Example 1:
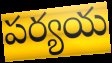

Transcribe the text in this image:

పర్యయ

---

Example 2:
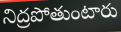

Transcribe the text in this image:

నిద్రపోతుంటారు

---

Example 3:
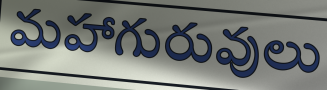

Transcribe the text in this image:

మహాగురువులు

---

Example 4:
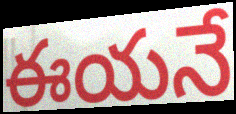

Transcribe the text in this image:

ఈయనే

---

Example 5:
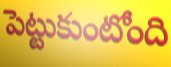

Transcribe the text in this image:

పెట్టుకుంటోంది